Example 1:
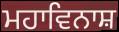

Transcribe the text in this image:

ਮਹਾਵਿਨਾਸ਼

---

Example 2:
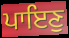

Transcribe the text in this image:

ਪਾਇਣੁ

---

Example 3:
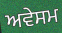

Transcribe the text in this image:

ਅਵੇਸਮ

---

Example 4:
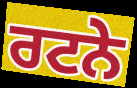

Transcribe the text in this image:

ਰਟਨੇ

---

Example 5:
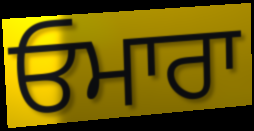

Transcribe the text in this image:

ਓਮਾਰਾ